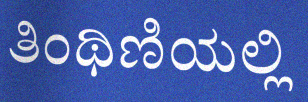
ತಿಂಥಿಣಿಯಲ್ಲಿ